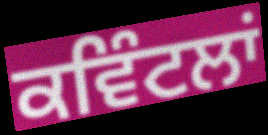
ਕਵਿੰਟਲਾਂ